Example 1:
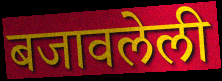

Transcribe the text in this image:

बजावलेली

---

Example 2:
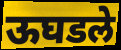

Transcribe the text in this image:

ऊघडले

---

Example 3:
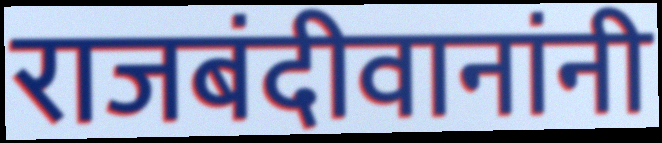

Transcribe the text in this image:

राजबंदीवानांनी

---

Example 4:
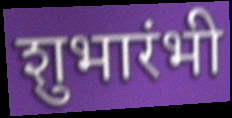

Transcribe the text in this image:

शुभारंभी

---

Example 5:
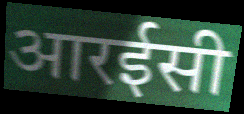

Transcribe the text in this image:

आरईसी